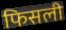
फिसली